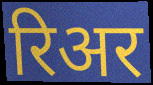
रिअर